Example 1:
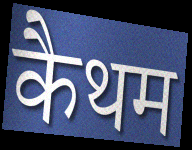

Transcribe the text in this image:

कैथम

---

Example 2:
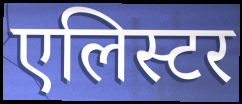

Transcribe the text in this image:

एलिस्टर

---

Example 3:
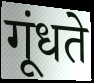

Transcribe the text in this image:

गूंधते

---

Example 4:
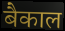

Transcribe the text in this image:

बैकाल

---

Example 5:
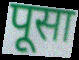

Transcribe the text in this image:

पूसा